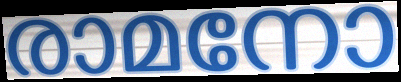
രാമനോ